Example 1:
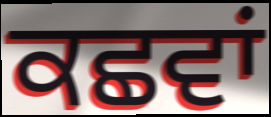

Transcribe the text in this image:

ਕਛਵਾਂ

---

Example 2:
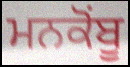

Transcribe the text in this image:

ਮਨਕੋਂਬੂ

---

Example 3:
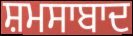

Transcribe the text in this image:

ਸ਼ਮਸਾਬਾਦ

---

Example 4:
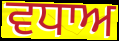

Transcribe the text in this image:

ਵਧਾਅ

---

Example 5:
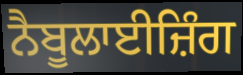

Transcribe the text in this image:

ਨੈਬੂਲਾਈਜ਼ਿੰਗ